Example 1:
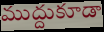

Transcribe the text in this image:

ముద్దుకూడా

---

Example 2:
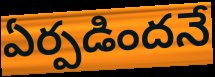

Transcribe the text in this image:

ఏర్పడిందనే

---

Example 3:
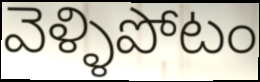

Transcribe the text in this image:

వెళ్ళిపోటం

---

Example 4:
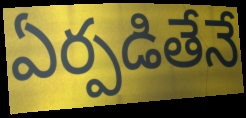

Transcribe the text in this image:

ఏర్పడితేనే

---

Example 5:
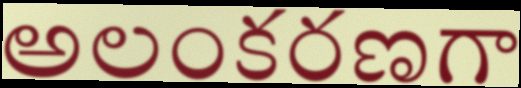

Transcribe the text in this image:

అలంకరణగా